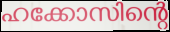
ഹക്കോസിന്റെ